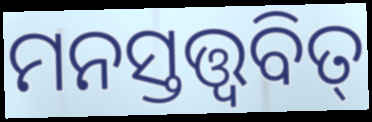
ମନସ୍ତତ୍ତ୍ଵବିତ୍